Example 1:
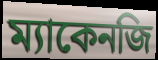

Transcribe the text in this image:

ম্যাকেনজি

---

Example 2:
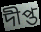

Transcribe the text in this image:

দীপ্ত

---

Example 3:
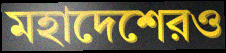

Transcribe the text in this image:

মহাদেশেরও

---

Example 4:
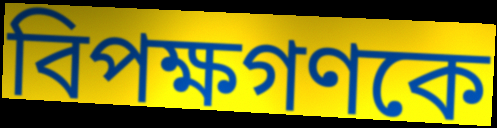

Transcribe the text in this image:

বিপক্ষগণকে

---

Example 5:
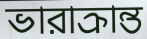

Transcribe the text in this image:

ভারাক্রান্ত